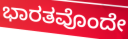
ಭಾರತವೊಂದೇ